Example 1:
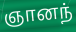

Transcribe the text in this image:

ஞானந்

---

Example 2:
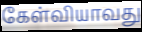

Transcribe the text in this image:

கேள்வியாவது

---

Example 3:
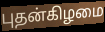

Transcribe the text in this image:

புதன்கிழமை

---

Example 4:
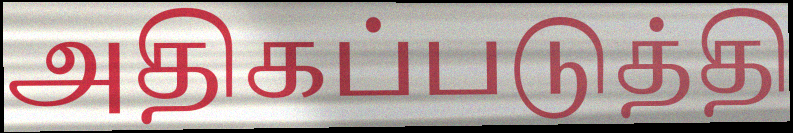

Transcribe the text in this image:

அதிகப்படுத்தி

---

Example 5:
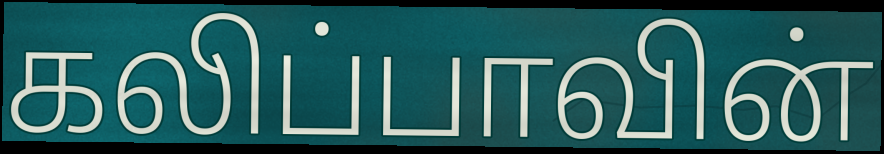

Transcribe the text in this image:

கலிப்பாவின்